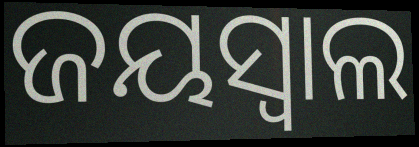
ଜୟସ୍ୱାଲ